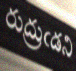
రుద్రుఁడని